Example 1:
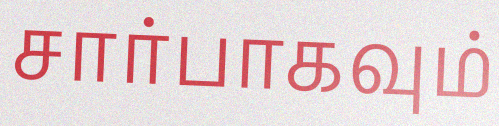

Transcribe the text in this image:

சார்பாகவும்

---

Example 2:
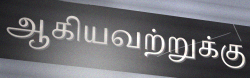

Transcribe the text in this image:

ஆகியவற்றுக்கு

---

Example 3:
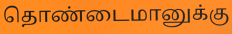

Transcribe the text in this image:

தொண்டைமானுக்கு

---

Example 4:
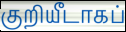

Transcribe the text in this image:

குறியீடாகப்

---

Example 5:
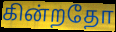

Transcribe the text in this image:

கின்றதோ